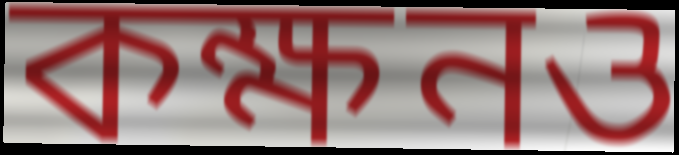
কক্ষনও